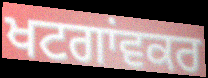
ਖਟਗਾਂਵਕਰ